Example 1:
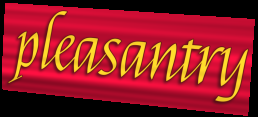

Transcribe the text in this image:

pleasantry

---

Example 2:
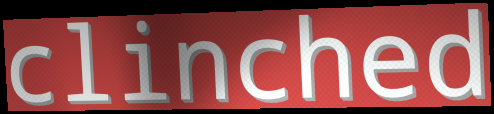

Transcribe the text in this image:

clinched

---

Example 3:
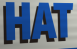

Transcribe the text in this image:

HAT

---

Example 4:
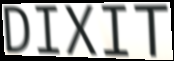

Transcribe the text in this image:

DIXIT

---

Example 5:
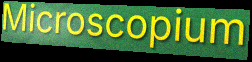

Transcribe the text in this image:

Microscopium